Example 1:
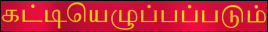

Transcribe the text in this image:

கட்டியெழுப்பப்படும்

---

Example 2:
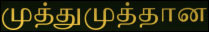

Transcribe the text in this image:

முத்துமுத்தான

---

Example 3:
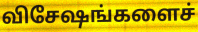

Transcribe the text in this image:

விசேஷங்களைச்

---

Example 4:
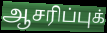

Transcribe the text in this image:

ஆசரிப்புக்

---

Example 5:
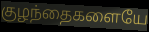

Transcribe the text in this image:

குழந்தைகளையே